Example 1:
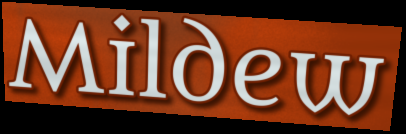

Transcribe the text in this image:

Mildew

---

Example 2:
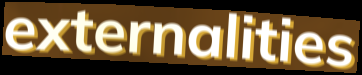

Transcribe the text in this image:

externalities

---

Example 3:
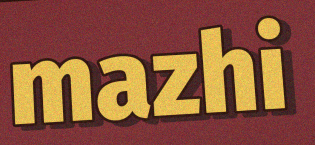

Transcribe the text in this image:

mazhi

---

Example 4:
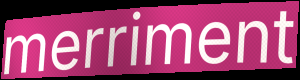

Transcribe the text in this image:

merriment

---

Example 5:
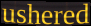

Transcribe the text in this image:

ushered